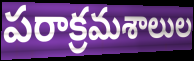
పరాక్రమశాలుల